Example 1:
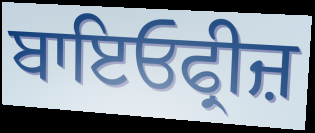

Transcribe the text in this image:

ਬਾਇਓਫ੍ਰੀਜ਼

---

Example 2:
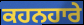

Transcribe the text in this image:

ਕਹਨਹਾਰੇ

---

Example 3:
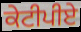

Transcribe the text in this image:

ਕੇਟੀਪੀਏ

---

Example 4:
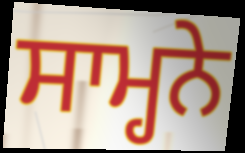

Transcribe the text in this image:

ਸਾਮ੍ਹਨੇ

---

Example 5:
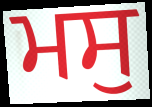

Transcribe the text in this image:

ਮਸੁ